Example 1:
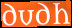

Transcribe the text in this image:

dudh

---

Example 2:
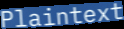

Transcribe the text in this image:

Plaintext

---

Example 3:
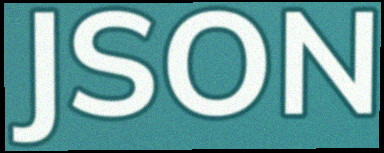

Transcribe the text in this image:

JSON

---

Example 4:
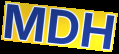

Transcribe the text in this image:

MDH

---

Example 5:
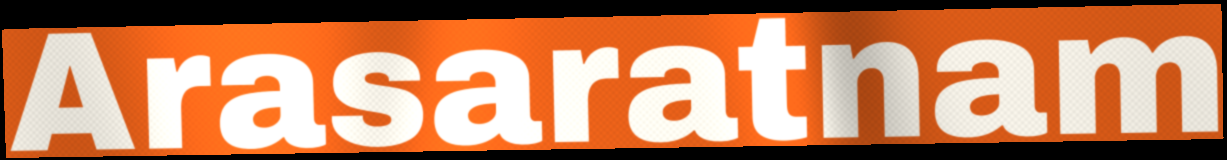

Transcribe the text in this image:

Arasaratnam